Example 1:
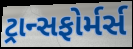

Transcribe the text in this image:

ટ્રાન્સફોર્મર્સ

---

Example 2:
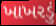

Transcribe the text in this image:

ખાખરડું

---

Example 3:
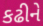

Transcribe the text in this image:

કઢીને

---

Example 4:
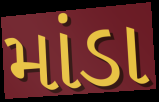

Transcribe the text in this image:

માંડા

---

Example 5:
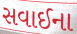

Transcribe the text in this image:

સવાઈના